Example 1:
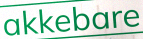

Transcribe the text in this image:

akkebare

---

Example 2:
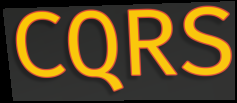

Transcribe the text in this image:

CQRS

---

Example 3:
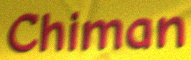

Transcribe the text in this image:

Chiman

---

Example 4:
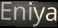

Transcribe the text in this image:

Eniya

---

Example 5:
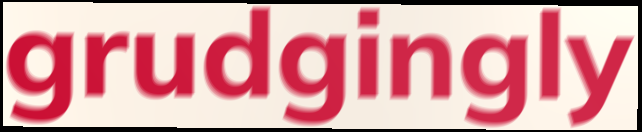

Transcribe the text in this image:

grudgingly